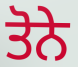
ਤੋਨੇ